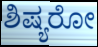
ಶಿಷ್ಯರೋ